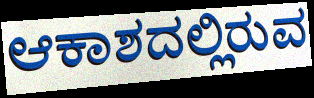
ಆಕಾಶದಲ್ಲಿರುವ